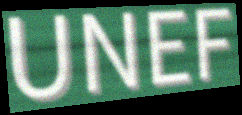
UNEF